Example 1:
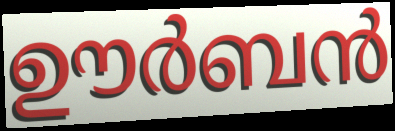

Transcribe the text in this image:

ഊർബൻ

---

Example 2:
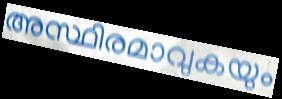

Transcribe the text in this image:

അസ്ഥിരമാവുകയും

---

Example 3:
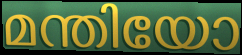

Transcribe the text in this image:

മന്തിയോ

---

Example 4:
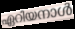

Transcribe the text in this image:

ഏറിയനാൾ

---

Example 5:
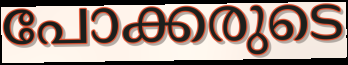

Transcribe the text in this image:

പോക്കരുടെ